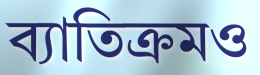
ব্যাতিক্রমও